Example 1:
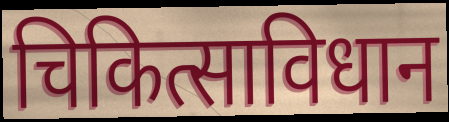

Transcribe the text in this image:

चिकित्साविधान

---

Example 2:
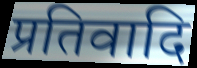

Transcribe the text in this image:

प्रतिवादि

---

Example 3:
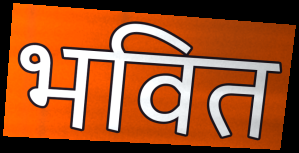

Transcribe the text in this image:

भवित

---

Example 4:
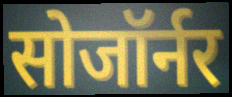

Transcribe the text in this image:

सोजॉर्नर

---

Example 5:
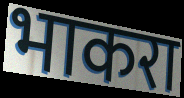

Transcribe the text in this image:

भाकरा